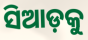
ସିଆଡ଼କୁ